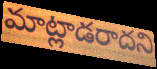
మాట్లాడరాదని